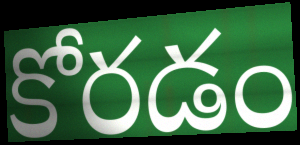
కోరడం